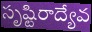
సృష్టిరాద్యేవ